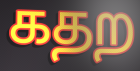
கதற